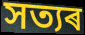
সত্যৰ